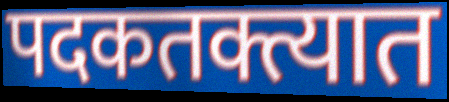
पदकतक्त्यात